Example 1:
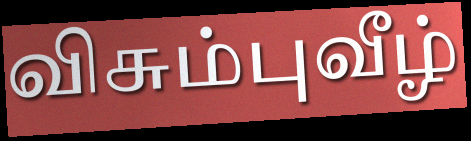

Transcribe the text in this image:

விசும்புவீழ்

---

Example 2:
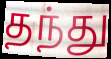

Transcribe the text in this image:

தந்து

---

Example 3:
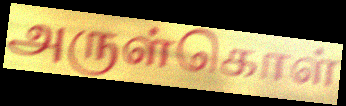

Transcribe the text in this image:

அருள்கொள்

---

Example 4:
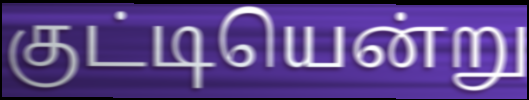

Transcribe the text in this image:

குட்டியென்று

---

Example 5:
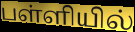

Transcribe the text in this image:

பள்ளியில்